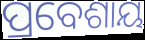
ପ୍ରବେଶାୟ